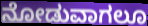
ನೋಡುವಾಗಲೂ